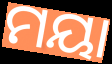
ମୟା